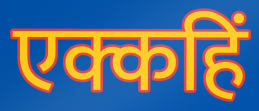
एक्कहिं